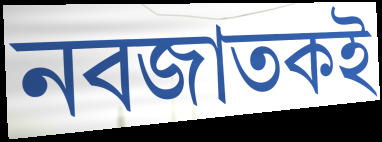
নবজাতকই